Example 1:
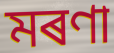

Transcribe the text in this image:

মৰণা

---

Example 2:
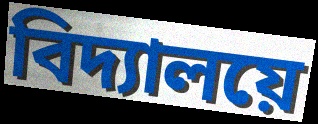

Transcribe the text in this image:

বিদ্যালয়ে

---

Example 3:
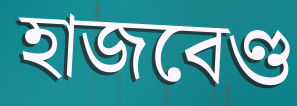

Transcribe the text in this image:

হাজবেণ্ড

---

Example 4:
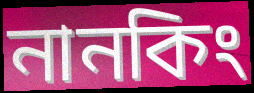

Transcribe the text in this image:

নানকিং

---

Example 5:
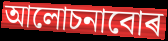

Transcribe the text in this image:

আলোচনাবোৰ